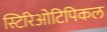
स्टिरिओटिपिकल